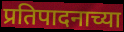
प्रतिपादनाच्या